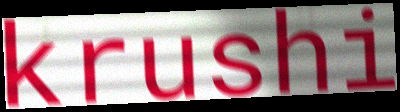
krushi